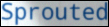
Sprouted